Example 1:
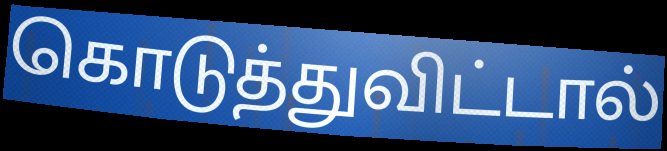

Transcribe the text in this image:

கொடுத்துவிட்டால்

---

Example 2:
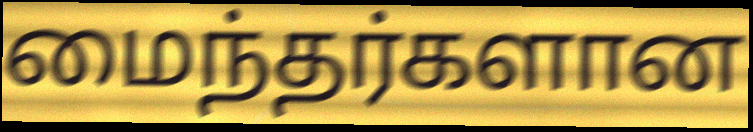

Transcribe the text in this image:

மைந்தர்களான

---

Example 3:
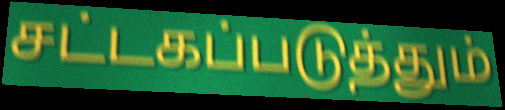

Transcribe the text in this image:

சட்டகப்படுத்தும்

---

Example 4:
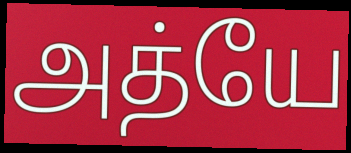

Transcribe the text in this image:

அத்யே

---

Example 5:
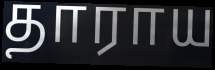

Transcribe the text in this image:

தாராய